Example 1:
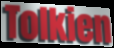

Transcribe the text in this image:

Tolkien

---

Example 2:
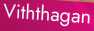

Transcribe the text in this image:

Viththagan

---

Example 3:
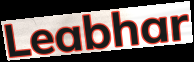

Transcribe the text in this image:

Leabhar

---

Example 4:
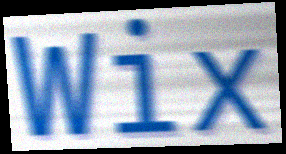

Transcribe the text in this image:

Wix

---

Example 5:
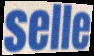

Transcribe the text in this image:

selle